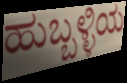
ಹುಬ್ಬಳ್ಳಿಯ